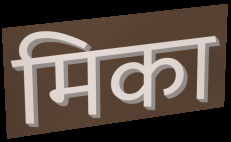
मिका